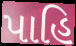
પાહિ